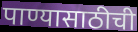
पाण्यासाठीची